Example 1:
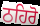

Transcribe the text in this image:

ਠਹਿਰੋ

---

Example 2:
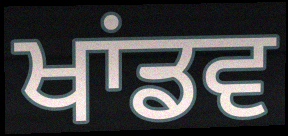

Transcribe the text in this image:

ਖਾਂਡਵ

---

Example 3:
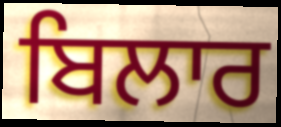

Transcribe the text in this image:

ਬਿਲਾਰ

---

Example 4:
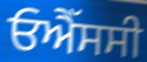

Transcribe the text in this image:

ਓਐੱਸਸੀ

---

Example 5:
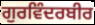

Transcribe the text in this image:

ਗੁਰਵਿੰਦਰਬੀਰ